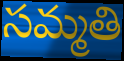
సమ్మతి